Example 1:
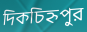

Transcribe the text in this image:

দিকচিহ্নপুর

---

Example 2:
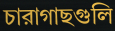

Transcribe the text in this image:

চারাগাছগুলি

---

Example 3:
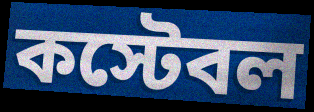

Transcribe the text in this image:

কস্টেবল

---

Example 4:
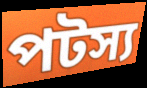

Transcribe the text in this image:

পটস্য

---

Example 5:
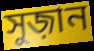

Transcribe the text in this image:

সুজ়ান